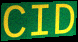
CID